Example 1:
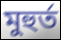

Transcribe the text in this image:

মুহুৰ্ত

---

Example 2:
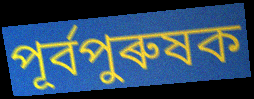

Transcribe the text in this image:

পূৰ্বপুৰুষক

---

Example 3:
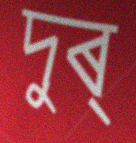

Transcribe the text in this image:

দুৰ্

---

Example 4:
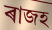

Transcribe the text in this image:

ৰাজহ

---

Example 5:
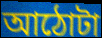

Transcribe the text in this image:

আঠোটা